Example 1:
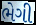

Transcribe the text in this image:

ભેગી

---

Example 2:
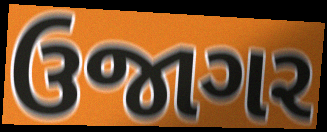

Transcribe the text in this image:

ઉજાગર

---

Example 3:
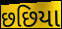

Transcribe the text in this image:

છછિયા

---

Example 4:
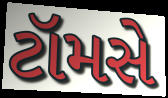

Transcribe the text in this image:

ટૉમસે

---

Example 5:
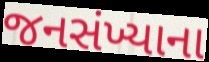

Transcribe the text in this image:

જનસંખ્યાના